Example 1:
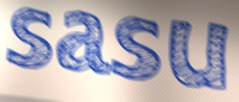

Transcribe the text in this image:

sasu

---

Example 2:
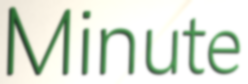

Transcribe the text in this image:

Minute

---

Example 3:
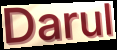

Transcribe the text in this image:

Darul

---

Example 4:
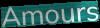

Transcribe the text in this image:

Amours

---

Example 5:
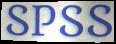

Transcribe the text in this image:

SPSS